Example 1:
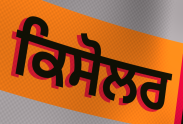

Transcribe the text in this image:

ਕਿਸੋਲਰ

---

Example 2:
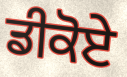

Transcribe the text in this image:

ਡੀਕੋਏ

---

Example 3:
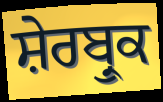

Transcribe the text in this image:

ਸ਼ੇਰਬ੍ਰੁਕ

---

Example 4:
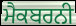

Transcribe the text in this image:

ਮੈਕਬਰਨੀ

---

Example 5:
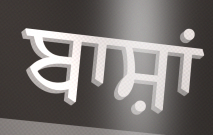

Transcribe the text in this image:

ਬਾਸ਼ਾਂ